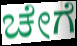
ಚೇಗೆ